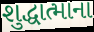
શુદ્ધાત્માના